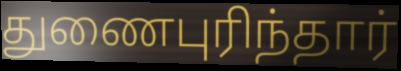
துணைபுரிந்தார்